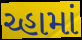
ચ્હામાં